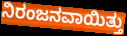
ನಿರಂಜನವಾಯಿತ್ತು